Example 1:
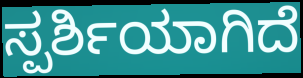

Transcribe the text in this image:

ಸ್ಪರ್ಶಿಯಾಗಿದೆ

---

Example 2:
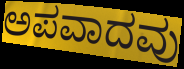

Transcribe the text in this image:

ಅಪವಾದವು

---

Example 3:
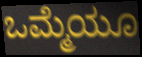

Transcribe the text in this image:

ಒಮ್ಮೆಯೂ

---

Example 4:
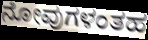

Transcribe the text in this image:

ನೋವುಗಳಂತಹ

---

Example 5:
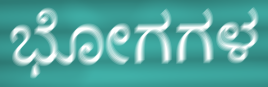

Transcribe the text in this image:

ಭೋಗಗಳ